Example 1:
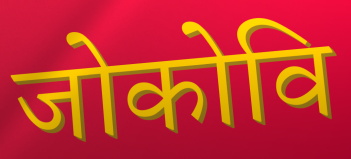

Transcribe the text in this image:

जोकोवि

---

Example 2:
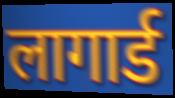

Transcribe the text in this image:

लागार्ड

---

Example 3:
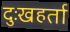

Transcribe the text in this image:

दुःखहर्ता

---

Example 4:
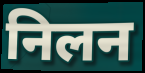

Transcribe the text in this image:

निलन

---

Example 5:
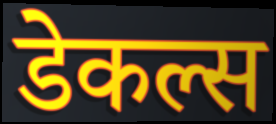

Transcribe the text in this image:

डेकल्स